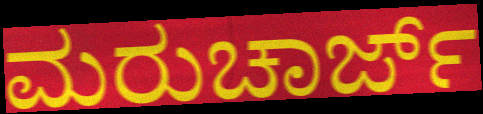
ಮರುಚಾರ್ಜ್